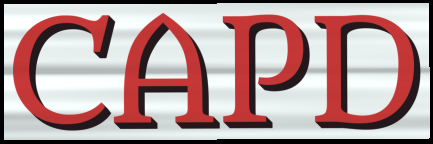
CAPD